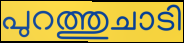
പുറത്തുചാടി